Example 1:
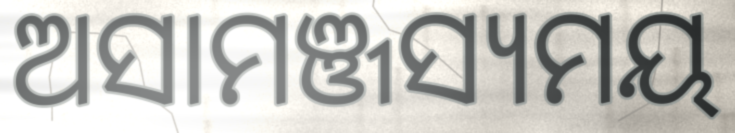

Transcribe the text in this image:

ଅସାମଞ୍ଜସ୍ୟମୟ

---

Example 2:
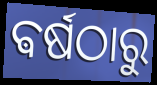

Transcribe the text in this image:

ଵର୍ଷଠାରୁ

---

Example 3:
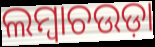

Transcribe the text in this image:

ଲମ୍ବାଚଉଡ଼ା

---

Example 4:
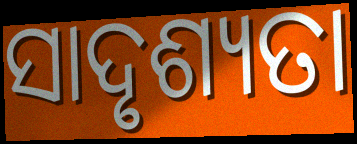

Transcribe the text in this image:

ସାଦୃଶ୍ୟତା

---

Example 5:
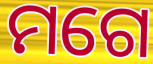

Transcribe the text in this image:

ମଗେ